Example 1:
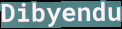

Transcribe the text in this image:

Dibyendu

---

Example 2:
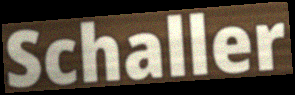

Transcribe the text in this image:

Schaller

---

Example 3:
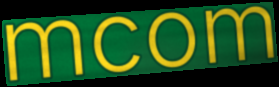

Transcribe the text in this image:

mcom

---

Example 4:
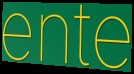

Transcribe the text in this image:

ente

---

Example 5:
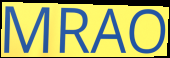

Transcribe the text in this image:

MRAO